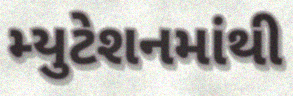
મ્યુટેશનમાંથી